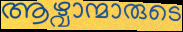
ആഴ്വാന്മാരുടെ